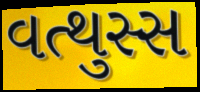
વત્થુસ્સ